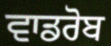
ਵਾਡਰੋਬ